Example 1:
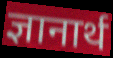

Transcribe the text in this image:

ज्ञानार्थ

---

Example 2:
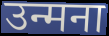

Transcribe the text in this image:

उन्मना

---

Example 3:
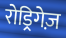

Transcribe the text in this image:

रोड्रिगेज़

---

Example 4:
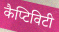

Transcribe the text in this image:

कैप्टिविटी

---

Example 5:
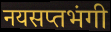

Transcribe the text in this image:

नयसप्तभंगी